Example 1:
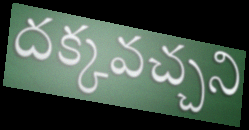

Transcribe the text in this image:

దక్కవచ్చని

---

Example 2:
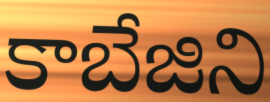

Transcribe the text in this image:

కాబేజిని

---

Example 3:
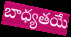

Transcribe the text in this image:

బాధ్యతయే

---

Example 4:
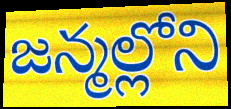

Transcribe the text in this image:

జన్మల్లోని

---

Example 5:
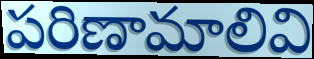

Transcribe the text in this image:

పరిణామాలివి